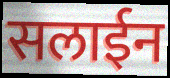
सलाईन